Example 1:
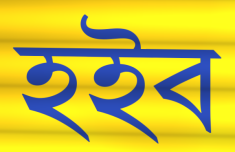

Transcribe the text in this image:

হইব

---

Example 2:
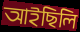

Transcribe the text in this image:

আইছিলি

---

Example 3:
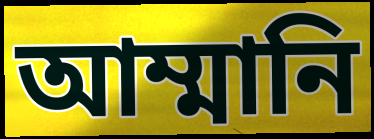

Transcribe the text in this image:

আম্মানি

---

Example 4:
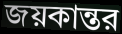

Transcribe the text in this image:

জয়কান্তর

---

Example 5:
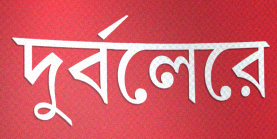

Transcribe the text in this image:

দুর্বলেরে